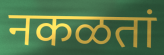
नकळतां